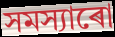
সমস্যাৰো